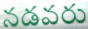
నడవరు